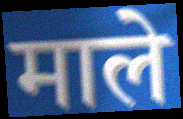
माले